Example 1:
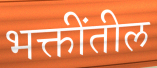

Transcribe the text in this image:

भक्तींतील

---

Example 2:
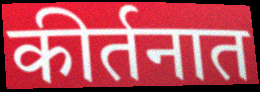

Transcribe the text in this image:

कीर्तनात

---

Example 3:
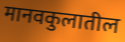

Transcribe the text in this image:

मानवकुलातील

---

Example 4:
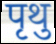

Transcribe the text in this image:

पृथु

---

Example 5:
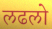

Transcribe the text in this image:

लढलो